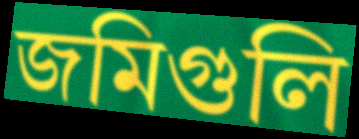
জমিগুলি